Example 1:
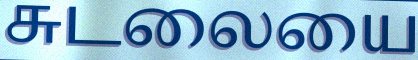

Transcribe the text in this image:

சுடலையை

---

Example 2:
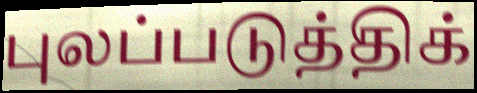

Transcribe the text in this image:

புலப்படுத்திக்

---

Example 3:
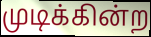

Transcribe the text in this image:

முடிக்கின்ற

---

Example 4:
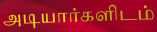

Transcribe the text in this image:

அடியார்களிடம்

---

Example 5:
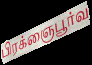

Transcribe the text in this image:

பிரக்ஞைபூர்வ